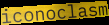
iconoclasm